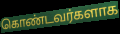
கொண்டவர்களாக